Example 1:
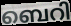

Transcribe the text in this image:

ബെറി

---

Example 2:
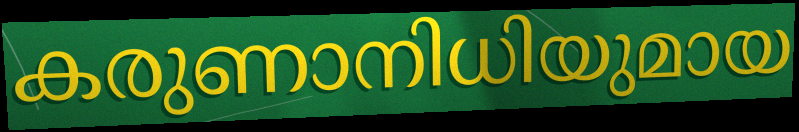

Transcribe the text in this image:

കരുണാനിധിയുമായ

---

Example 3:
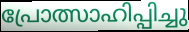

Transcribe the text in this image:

പ്രോത്സാഹിപ്പിച്ചു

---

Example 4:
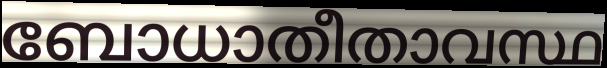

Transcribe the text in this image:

ബോധാതീതാവസ്ഥ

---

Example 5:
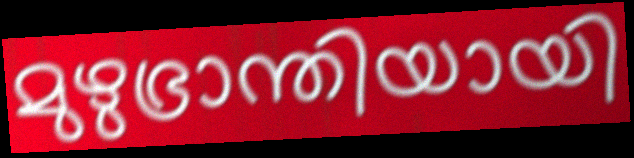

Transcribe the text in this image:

മുഴുഭ്രാന്തിയായി